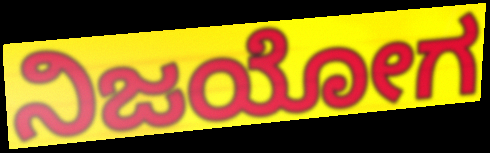
ನಿಜಯೋಗ